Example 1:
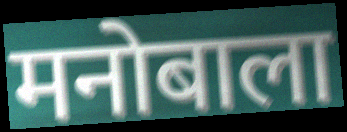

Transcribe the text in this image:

मनोबाला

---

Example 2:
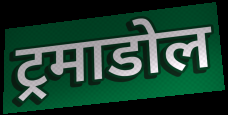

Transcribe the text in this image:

ट्रमाडोल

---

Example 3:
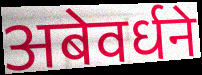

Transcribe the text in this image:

अबेवर्धने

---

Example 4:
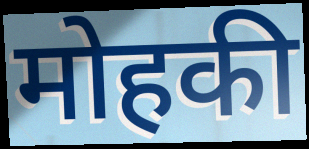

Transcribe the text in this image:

मोहकी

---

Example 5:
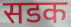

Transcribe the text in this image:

सडक